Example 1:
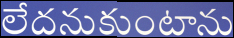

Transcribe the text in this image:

లేదనుకుంటాను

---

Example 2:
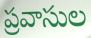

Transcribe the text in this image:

ప్రవాసుల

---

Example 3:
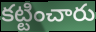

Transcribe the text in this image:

కట్టించారు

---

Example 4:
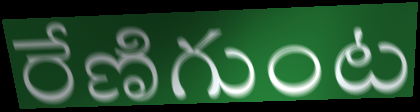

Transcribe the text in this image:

రేణిగుంట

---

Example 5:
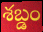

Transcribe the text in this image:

శబ్డం